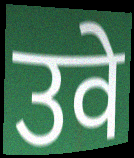
उवे